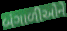
બંગાળીઓને